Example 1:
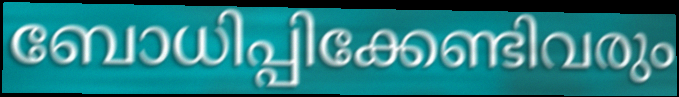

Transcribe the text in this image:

ബോധിപ്പിക്കേണ്ടിവരും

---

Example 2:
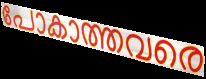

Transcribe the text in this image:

പോകാത്തവരെ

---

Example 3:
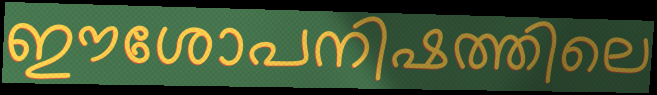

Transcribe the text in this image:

ഈശോപനിഷത്തിലെ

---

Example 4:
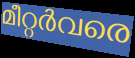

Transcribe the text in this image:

മീറ്റർവരെ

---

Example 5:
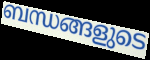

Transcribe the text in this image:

ബന്ധങ്ങളുടെ